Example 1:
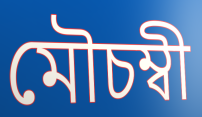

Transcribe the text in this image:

মৌচম্বী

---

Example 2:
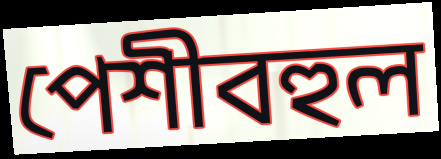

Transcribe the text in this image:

পেশীবহুল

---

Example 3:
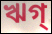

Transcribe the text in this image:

ঋগ্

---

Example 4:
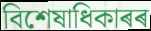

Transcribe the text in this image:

বিশেষাধিকাৰৰ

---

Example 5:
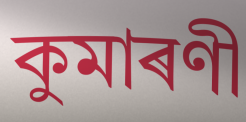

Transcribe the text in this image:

কুমাৰণী